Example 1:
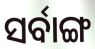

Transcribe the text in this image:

ସର୍ବାଙ୍ଗ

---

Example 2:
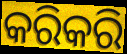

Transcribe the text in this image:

କରିକରି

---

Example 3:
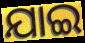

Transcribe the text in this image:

ଯାଇ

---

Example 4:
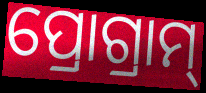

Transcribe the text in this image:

ପ୍ରୋଗ୍ରାମ୍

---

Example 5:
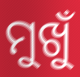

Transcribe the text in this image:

ମୁଖୁଁ